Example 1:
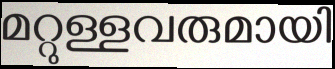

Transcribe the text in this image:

മറ്റുള്ളവരുമായി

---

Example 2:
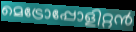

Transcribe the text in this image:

മെട്രോപ്പോളിറ്റൻ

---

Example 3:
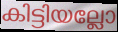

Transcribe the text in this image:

കിട്ടിയല്ലോ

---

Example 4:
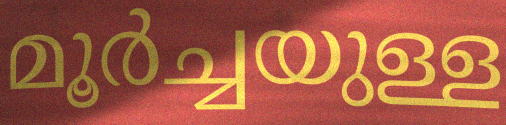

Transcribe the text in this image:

മൂർച്ചയുള്ള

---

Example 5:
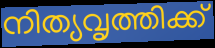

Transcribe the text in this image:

നിത്യവൃത്തിക്ക്